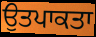
ਉਤਪਾਕਤਾ